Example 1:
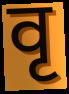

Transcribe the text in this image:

वृ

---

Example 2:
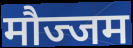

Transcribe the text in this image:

मौज्जम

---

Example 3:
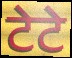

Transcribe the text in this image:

टेटे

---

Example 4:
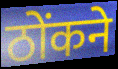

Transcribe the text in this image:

ठोंकने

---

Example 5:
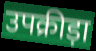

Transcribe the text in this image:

उपक्रीड़ा